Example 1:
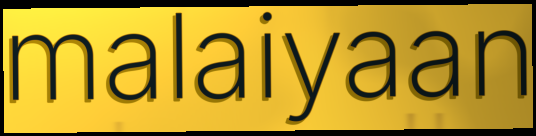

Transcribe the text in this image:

malaiyaan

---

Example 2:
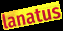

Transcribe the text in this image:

lanatus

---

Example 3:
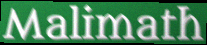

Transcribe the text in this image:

Malimath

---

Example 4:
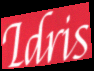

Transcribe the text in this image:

Idris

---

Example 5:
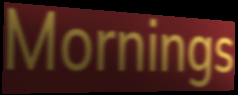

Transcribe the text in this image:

Mornings